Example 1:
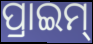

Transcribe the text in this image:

ପ୍ରାଇମ୍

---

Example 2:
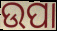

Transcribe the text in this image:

ଉପା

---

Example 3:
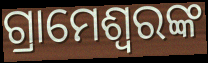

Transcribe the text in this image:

ଗ୍ରାମେଶ୍ୱରଙ୍କ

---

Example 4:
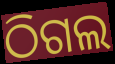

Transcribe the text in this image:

ଠିଗଲ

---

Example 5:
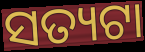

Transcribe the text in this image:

ସତ୍ୟଟା